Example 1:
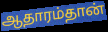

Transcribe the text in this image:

ஆதாரம்தான்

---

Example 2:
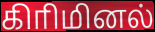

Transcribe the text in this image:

கிரிமினல்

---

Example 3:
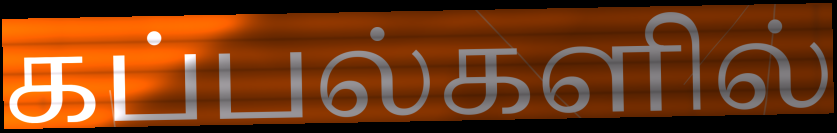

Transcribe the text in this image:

கப்பல்களில்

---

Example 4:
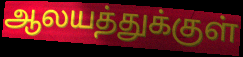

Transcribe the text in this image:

ஆலயத்துக்குள்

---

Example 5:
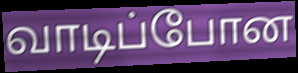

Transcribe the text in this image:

வாடிப்போன